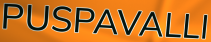
PUSPAVALLI